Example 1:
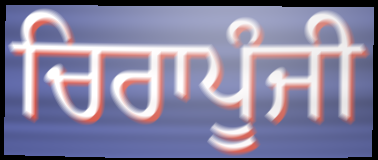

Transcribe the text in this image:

ਚਿਰਾਪੂੰਜੀ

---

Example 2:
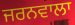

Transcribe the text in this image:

ਜਰਨਵਾਲਾ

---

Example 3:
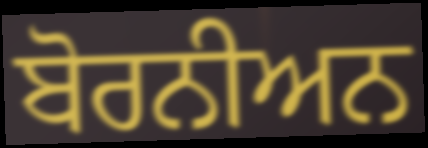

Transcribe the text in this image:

ਬੋਰਨੀਅਨ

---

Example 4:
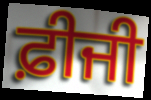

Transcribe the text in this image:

ਫ਼ੀਜੀ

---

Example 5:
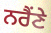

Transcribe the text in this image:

ਨਰੈਂਣੇ